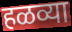
हळव्या